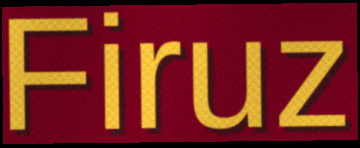
Firuz